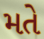
મતે